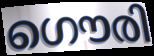
ഗൌരി